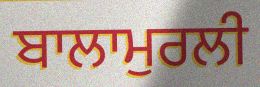
ਬਾਲਾਮੁਰਲੀ